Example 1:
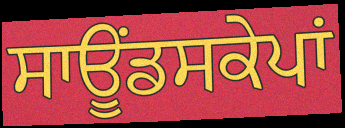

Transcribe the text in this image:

ਸਾਊਂਡਸਕੇਪਾਂ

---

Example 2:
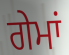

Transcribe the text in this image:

ਗੇਮਾਂ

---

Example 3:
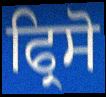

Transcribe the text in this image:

ਫ੍ਰਿਸੋ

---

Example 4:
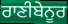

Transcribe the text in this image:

ਰਾਣੀਬੇਨੂਰ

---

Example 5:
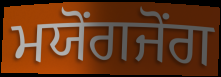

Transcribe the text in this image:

ਮਯੋਂਗਜੋਂਗ